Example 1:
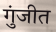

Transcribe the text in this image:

गुंजीत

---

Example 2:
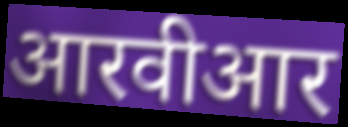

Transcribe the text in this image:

आरवीआर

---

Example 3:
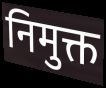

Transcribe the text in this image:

निमुक्त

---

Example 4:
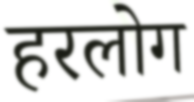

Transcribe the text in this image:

हरलोग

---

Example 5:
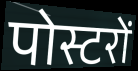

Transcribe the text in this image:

पोस्‍टरों